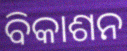
ବିକାଶନ